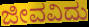
ಜೀವವಿದು